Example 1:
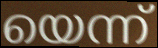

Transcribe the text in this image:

യെന്ന്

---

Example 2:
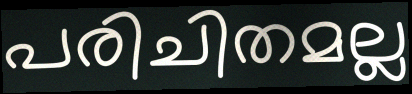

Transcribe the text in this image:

പരിചിതമല്ല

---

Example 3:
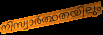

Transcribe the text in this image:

നിസ്വാർത്ഥതയിലും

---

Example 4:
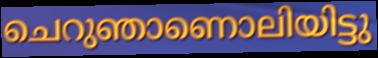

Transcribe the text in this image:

ചെറുഞാണൊലിയിട്ടു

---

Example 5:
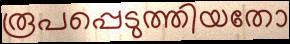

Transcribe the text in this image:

രൂപപ്പെടുത്തിയതോ